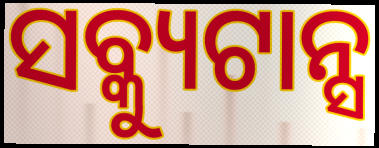
ସବ୍କ୍ୟୁଟାନ୍ସ